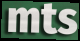
mts